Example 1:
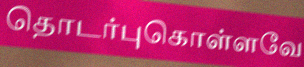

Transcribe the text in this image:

தொடர்புகொள்ளவே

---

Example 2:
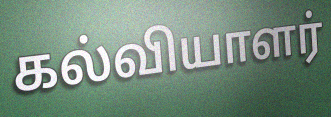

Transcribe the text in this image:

கல்வியாளர்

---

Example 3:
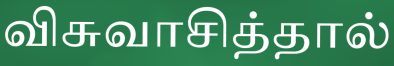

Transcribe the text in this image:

விசுவாசித்தால்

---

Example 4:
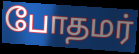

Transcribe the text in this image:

போதமர்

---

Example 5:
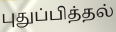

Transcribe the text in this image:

புதுப்பித்தல்